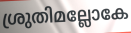
ശ്രുതിമല്ലോകേ